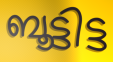
ബൂട്ടിട്ട